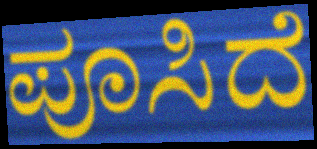
ಪೂಸಿದೆ